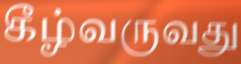
கீழ்வருவது